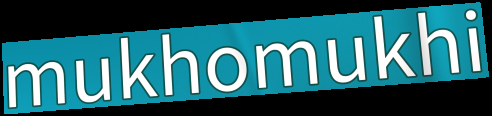
mukhomukhi